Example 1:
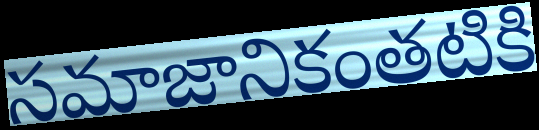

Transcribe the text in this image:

సమాజానికంతటికి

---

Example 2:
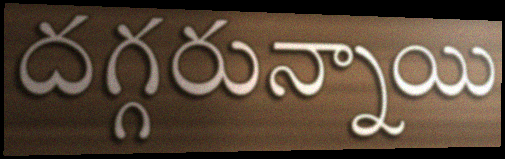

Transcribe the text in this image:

దగ్గరున్నాయి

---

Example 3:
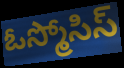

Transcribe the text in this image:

ఓస్మోసిస్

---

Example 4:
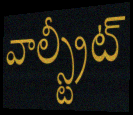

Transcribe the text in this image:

వాల్స్ట్రీట్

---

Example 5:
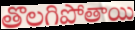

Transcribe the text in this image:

తొలగిపోతాయి